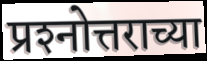
प्रश्नोत्तराच्या